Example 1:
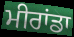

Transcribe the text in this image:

ਮੀਰਾਂਡਾ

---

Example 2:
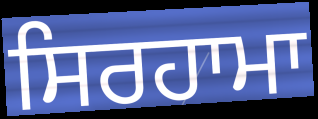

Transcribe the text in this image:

ਸਿਰਹਾਮਾ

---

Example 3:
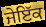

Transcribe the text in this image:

ਜੇਇੱਕ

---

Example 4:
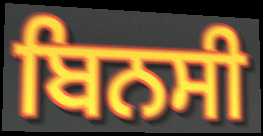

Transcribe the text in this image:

ਬਿਨਸੀ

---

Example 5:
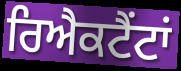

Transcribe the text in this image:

ਰਿਐਕਟੈਂਟਾਂ